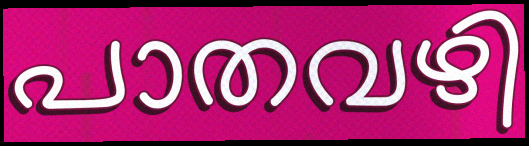
പാതവഴി